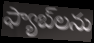
ఫ్యాబ్‌లను